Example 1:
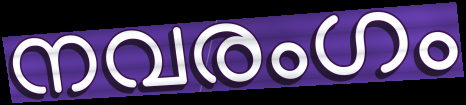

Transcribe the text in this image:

നവരംഗം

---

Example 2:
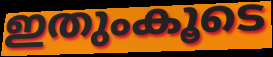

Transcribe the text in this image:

ഇതുംകൂടെ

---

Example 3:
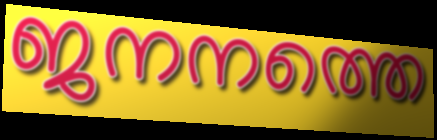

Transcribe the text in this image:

ജനനത്തെ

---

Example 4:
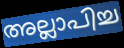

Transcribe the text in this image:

അല്ലാപിച്ച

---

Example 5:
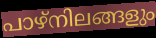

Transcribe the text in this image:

പാഴ്നിലങ്ങളും